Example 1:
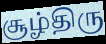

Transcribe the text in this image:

சூழ்திரு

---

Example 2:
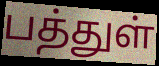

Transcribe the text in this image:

பத்துள்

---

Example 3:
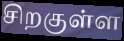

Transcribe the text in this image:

சிறகுள்ள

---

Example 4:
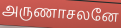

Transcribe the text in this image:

அருணாசலனே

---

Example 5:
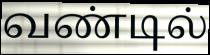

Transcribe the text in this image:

வண்டில்